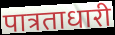
पात्रताधारी